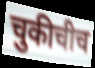
चुकीचीच